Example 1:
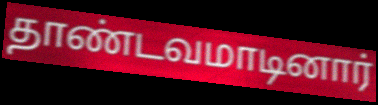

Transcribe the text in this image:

தாண்டவமாடினார்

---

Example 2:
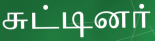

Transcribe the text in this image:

சுட்டினர்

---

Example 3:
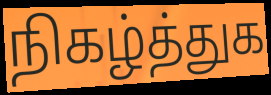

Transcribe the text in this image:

நிகழ்த்துக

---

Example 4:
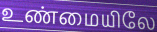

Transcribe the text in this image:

உண்மையிலே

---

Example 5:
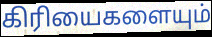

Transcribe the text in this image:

கிரியைகளையும்